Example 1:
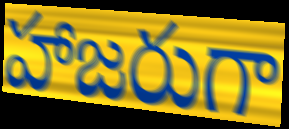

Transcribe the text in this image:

హాజరుగా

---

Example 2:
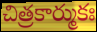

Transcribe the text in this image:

చిత్రకార్ముకః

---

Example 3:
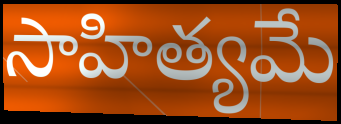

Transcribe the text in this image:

సాహిత్యమే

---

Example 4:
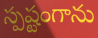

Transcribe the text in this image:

స్పష్టంగాను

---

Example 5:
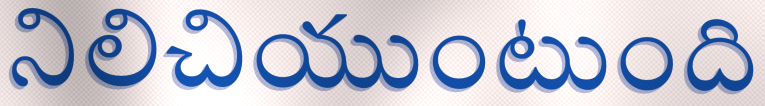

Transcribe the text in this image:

నిలిచియుంటుంది